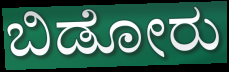
ಬಿಡೋರು